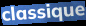
classique